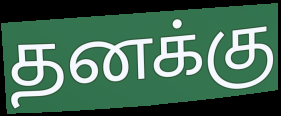
தனக்கு